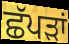
ਛੱਪੜਾਂ